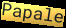
Papale